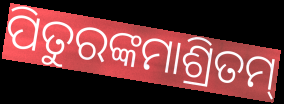
ପିତୁରଙ୍କମାଶ୍ରିତମ୍